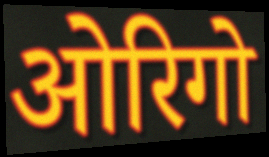
ओरिगो